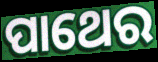
ପାଥେର